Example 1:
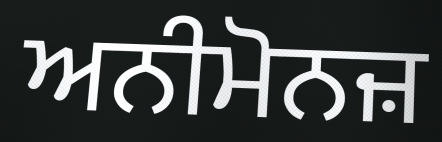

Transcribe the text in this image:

ਅਨੀਮੋਨਜ਼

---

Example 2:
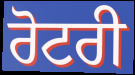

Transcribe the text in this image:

ਰੋਟਰੀ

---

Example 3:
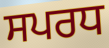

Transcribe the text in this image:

ਸਪਰਧ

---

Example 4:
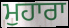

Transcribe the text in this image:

ਮੁਹਾਰਾ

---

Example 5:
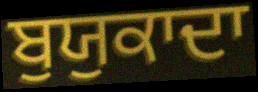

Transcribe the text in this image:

ਬੁਯੁਕਾਦਾ